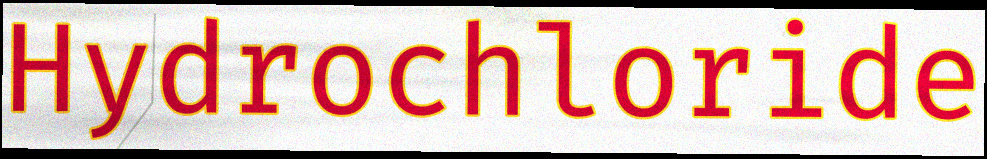
Hydrochloride